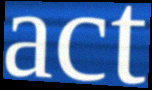
act